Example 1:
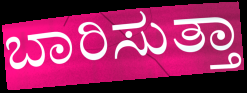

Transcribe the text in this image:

ಬಾರಿಸುತ್ತಾ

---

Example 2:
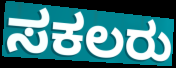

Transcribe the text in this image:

ಸಕಲರು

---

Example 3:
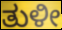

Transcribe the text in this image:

ತುಳೀ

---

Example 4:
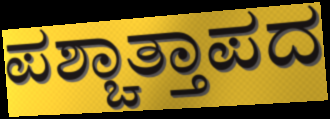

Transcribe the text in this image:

ಪಶ್ಚಾತ್ತಾಪದ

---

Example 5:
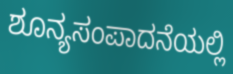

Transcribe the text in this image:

ಶೂನ್ಯಸಂಪಾದನೆಯಲ್ಲಿ